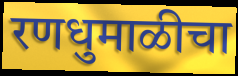
रणधुमाळीचा